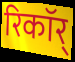
रिकॉर्